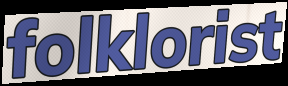
folklorist